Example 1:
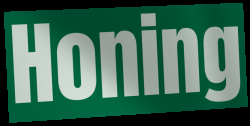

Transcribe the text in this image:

Honing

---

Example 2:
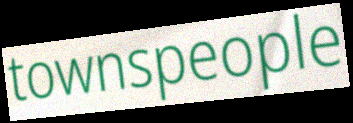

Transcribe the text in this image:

townspeople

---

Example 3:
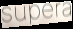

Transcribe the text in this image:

supera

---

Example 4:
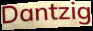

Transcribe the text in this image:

Dantzig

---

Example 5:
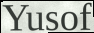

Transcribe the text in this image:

Yusof